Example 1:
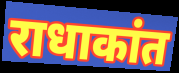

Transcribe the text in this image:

राधाकांत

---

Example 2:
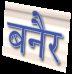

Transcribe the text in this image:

बनैर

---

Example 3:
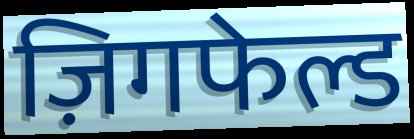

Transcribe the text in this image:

ज़िगफेल्ड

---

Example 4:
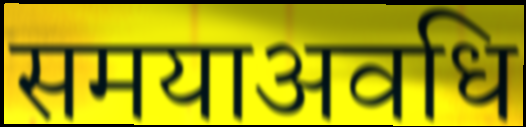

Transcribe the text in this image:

समयाअवधि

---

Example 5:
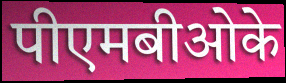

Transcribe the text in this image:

पीएमबीओके